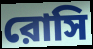
রোসি